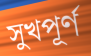
সুখপূর্ণ